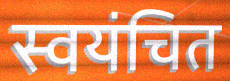
स्वयंचित